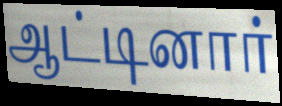
ஆட்டினார்